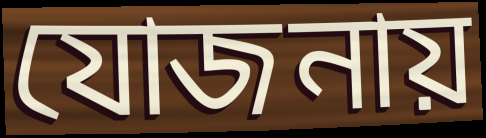
যোজনায়